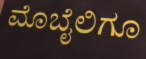
ಮೊಬೈಲಿಗೂ